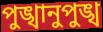
পুঙ্খানুপুঙ্খ